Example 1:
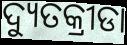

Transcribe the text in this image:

ଦ୍ୟୁତକ୍ରୀଡା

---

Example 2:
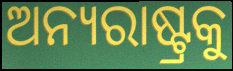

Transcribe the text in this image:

ଅନ୍ୟରାଷ୍ଟ୍ରକୁ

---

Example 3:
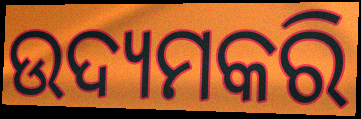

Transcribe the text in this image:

ଉଦ୍ୟମକରି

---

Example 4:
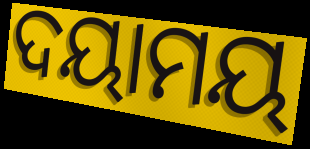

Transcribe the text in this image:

ଦୟାମୟ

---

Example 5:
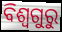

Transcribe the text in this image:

ବିଶ୍ୱଗୁରୁ